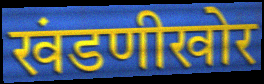
खंडणीखोर